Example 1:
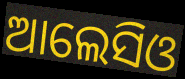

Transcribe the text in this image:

ଆଲେସିଓ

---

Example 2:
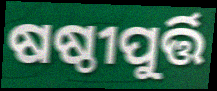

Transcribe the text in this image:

ଷଷ୍ଠୀପୁର୍ତ୍ତି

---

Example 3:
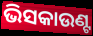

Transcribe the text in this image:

ଭିସକାଉଣ୍ଟ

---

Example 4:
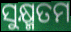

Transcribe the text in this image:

ସୁକ୍ଷ୍ମତମ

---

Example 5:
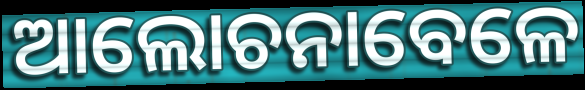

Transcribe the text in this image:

ଆଲୋଚନାବେଳେ